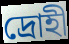
দ্ৰোহী